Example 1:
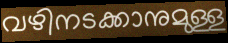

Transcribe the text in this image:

വഴിനടക്കാനുമുള്ള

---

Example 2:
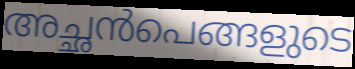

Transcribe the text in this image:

അച്ഛൻപെങ്ങളുടെ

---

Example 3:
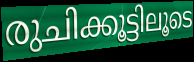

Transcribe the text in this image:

രുചിക്കൂട്ടിലൂടെ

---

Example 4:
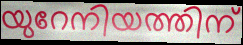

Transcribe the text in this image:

യുറേനിയത്തിന്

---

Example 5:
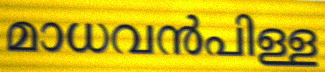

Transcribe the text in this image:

മാധവൻപിള്ള